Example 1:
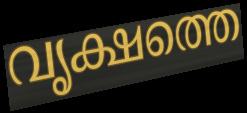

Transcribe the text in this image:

വൃക്ഷത്തെ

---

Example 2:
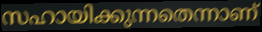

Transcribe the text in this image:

സഹായിക്കുന്നതെന്നാണ്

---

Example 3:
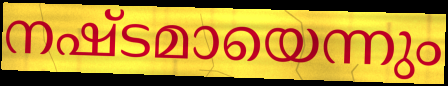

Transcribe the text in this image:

നഷ്ടമായെന്നും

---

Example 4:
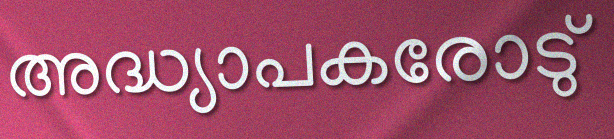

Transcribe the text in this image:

അദ്ധ്യാപകരോടു്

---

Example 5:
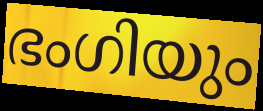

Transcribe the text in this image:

ഭംഗിയും